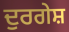
ਦੁਰਗੇਸ਼